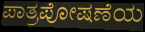
ಪಾತ್ರಪೋಷಣೆಯ